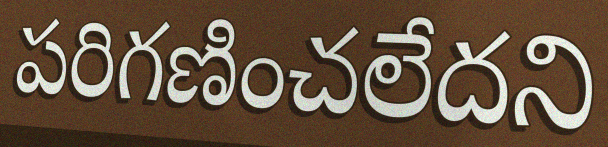
పరిగణించలేదని